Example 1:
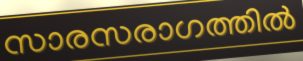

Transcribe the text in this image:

സാരസരാഗത്തിൽ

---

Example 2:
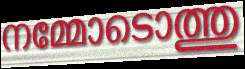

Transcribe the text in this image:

നമ്മോടൊത്തു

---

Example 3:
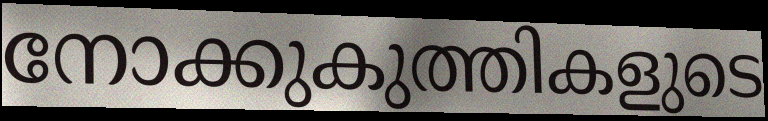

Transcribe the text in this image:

നോക്കുകുത്തികളുടെ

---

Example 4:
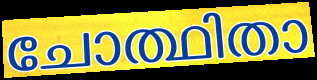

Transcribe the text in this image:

ചോത്ഥിതാ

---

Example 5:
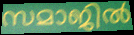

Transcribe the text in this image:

സമാജിൽ